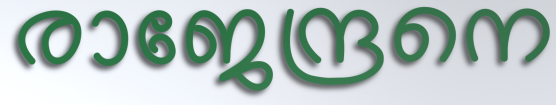
രാജേന്ദ്രനെ